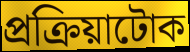
প্ৰক্ৰিয়াটোক